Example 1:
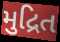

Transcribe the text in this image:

મુદ્રિત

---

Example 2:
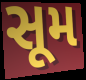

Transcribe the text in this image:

સૂમ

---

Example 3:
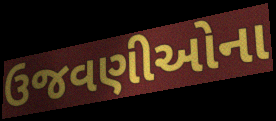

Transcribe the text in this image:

ઉજવણીઓના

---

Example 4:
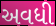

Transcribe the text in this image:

અવધી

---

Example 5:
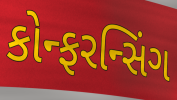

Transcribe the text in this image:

કોન્ફરન્સિંગ